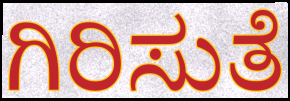
ಗಿರಿಸುತೆ